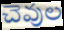
చెవుల